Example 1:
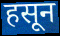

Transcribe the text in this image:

हसून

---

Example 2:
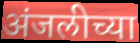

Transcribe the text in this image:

अंजलीच्या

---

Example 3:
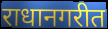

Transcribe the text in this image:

राधानगरीत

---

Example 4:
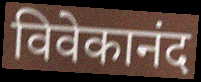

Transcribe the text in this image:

विवेकानंद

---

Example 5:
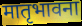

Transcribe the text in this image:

मातृभावना